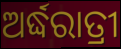
ଅର୍ଦ୍ଧରାତ୍ରୀ